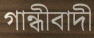
গান্ধীবাদী